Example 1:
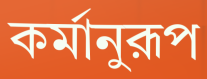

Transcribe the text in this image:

কর্মানুরূপ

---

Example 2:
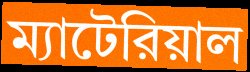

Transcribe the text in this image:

ম্যাটেরিয়াল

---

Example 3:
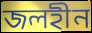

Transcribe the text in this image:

জলহীন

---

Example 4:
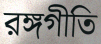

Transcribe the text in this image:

রঙ্গগীতি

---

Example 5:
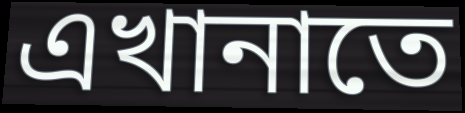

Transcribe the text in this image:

এখানাতে